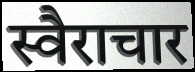
स्वैराचार